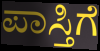
ಪಾಸ್ತಿಗೆ